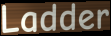
Ladder